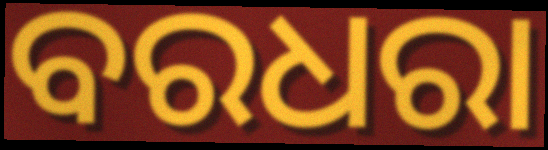
ବରଧରା